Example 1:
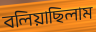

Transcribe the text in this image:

বলিয়াছিলাম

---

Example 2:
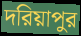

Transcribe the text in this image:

দরিয়াপুর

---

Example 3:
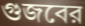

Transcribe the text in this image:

গুজবের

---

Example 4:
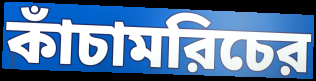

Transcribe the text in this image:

কাঁচামরিচের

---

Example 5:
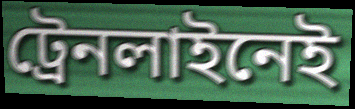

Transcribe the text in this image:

ট্রেনলাইনেই